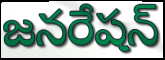
జనరేషన్